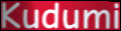
Kudumi